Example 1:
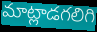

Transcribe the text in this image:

మాట్లాడగలిగి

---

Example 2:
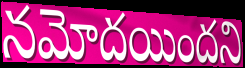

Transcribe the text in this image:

నమోదయిందని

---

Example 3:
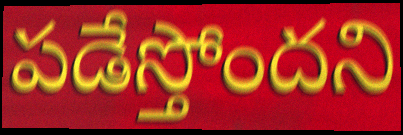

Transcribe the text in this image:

పడేస్తోందని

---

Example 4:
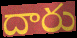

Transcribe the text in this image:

దారు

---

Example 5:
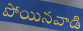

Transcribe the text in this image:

పోయినవాడి